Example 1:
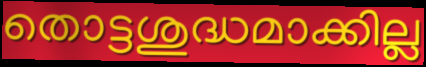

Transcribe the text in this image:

തൊട്ടശുദ്ധമാക്കില്ല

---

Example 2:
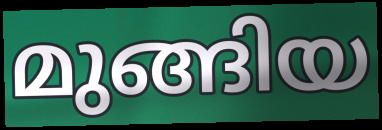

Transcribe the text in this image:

മുങ്ങിയ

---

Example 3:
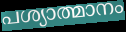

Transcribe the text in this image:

പശ്യാത്മാനം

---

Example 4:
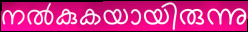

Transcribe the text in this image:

നൽകുകയായിരുന്നു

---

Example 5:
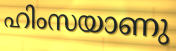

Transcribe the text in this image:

ഹിംസയാണു